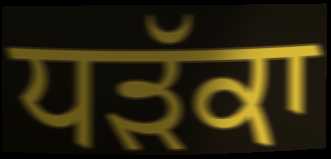
ਧੜੱਕਾ